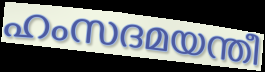
ഹംസദമയന്തീ